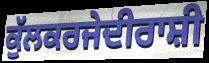
ਕੁੱਲਕਰਜੇਦੀਰਾਸ਼ੀ